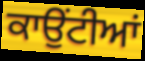
ਕਾਉਂਟੀਆਂ